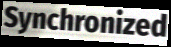
Synchronized